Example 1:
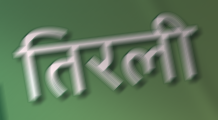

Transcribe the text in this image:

तिरली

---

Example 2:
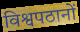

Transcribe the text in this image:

विश्वपठानों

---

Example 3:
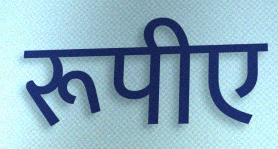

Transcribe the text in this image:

रूपीए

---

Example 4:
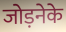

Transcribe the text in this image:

जोड़नेके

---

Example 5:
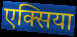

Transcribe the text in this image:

एक्सिया